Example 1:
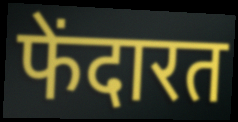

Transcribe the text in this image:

फेंदारत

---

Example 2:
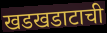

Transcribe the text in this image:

खडखडाटाची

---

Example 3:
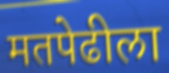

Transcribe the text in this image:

मतपेढीला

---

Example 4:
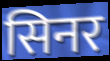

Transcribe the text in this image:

सिनर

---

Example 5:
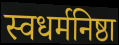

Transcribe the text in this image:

स्वधर्मनिष्ठा